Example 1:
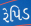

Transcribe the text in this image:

રેપિડ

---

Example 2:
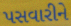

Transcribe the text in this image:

પસવારીને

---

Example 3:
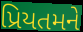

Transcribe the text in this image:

પ્રિયતમને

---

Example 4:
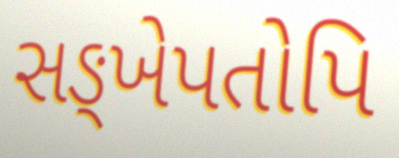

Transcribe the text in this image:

સઙ્ખેપતોપિ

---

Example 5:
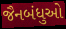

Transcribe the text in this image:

જૈનબંધુઓ